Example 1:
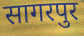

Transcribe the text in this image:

सागरपुर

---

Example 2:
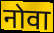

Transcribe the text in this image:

नोवा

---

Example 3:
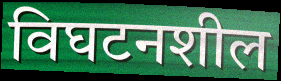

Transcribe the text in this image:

विघटनशील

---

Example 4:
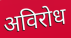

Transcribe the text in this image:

अविरोध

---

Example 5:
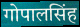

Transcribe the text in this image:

गोपालसिंह